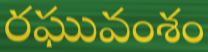
రఘువంశం